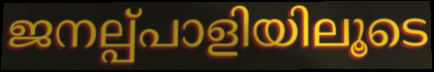
ജനല്പ്പാളിയിലൂടെ